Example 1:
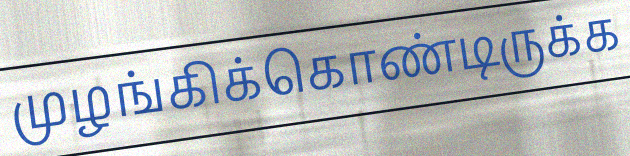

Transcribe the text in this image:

முழங்கிக்கொண்டிருக்க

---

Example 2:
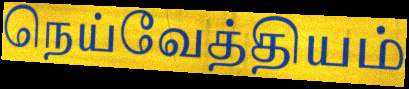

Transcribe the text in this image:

நெய்வேத்தியம்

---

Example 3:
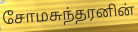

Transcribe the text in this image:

சோமசுந்தரனின்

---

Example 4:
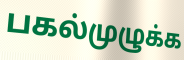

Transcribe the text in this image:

பகல்முழுக்க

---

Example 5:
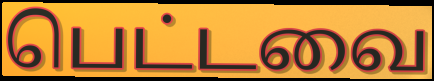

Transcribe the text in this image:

பெட்டவை